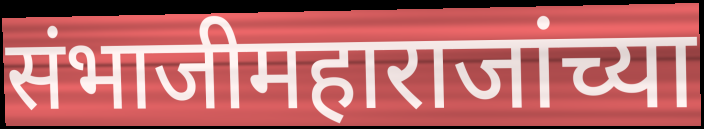
संभाजीमहाराजांच्या